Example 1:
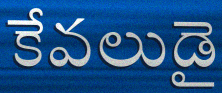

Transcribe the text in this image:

కేవలుడై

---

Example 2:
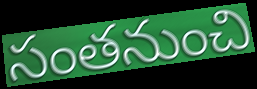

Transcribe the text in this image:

సంతనుంచి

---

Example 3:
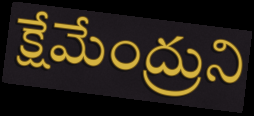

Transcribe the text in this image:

క్షేమేంద్రుని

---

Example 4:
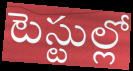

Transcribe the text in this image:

టెస్టుల్లో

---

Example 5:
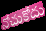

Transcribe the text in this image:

నోచుకోదు